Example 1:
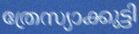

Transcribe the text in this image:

ത്രേസ്യാക്കുട്ടി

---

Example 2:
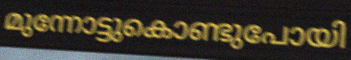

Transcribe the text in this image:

മുന്നോട്ടുകൊണ്ടുപോയി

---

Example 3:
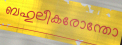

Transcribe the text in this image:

ബഹുലീകരോന്തോ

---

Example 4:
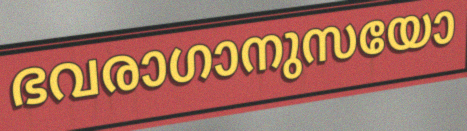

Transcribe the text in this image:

ഭവരാഗാനുസയോ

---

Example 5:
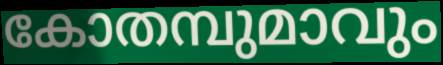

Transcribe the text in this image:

കോതമ്പുമാവും